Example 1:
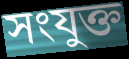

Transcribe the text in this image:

সংযুক্ত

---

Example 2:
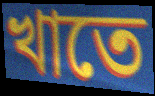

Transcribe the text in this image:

খাতে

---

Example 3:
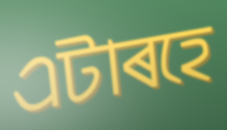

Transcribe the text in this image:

এটাৰহে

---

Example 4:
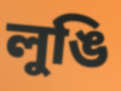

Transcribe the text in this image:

লুঙি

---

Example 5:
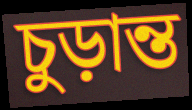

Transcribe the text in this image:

চুড়ান্ত